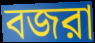
বজরা